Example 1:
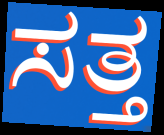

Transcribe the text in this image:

ಸತ್ತ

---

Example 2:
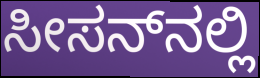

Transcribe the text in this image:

ಸೀಸನ್‌ನಲ್ಲಿ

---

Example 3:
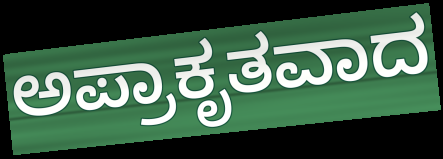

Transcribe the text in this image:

ಅಪ್ರಾಕೃತವಾದ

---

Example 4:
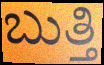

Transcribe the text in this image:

ಬುತ್ತಿ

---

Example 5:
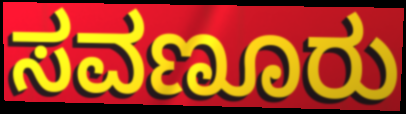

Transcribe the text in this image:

ಸವಣೂರು